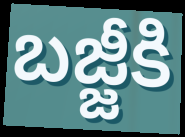
బజ్జీకి